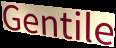
Gentile